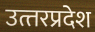
उत्‍तरप्रदेश